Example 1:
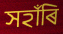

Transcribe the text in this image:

সহাঁৰি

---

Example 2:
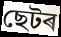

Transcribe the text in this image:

ছেটৰ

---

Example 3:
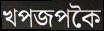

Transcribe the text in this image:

খপজপকৈ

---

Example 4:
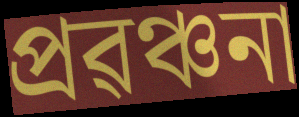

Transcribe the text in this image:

প্ৰৱঞ্চনা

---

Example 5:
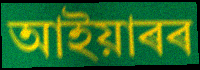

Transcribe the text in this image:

আইয়াৰৰ